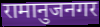
रामानुजनगर